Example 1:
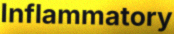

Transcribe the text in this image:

Inflammatory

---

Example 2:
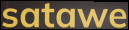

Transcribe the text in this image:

satawe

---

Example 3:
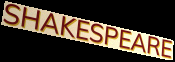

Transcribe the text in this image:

SHAKESPEARE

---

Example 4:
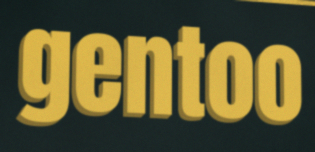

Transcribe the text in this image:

gentoo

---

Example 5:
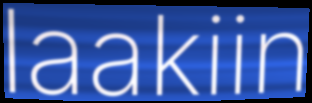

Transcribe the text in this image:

laakiin